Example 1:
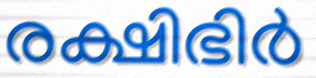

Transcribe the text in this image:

രക്ഷിഭിർ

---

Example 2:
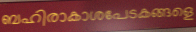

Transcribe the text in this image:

ബഹിരാകാശപേടകങ്ങളെ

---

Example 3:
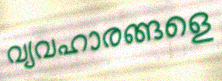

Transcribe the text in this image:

വ്യവഹാരങ്ങളെ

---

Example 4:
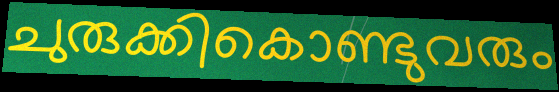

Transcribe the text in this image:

ചുരുക്കികൊണ്ടുവരും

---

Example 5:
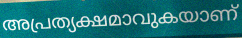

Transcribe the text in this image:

അപ്രത്യക്ഷമാവുകയാണ്